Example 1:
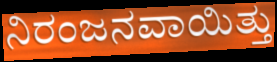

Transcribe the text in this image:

ನಿರಂಜನವಾಯಿತ್ತು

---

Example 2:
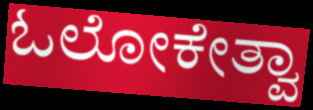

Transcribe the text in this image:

ಓಲೋಕೇತ್ವಾ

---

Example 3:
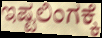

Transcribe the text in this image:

ಇಷ್ಟಲಿಂಗಕ್ಕೆ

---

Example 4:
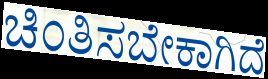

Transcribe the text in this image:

ಚಿಂತಿಸಬೇಕಾಗಿದೆ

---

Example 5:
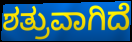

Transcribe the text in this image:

ಶತ್ರುವಾಗಿದೆ